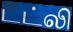
டட்லி